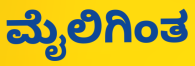
ಮೈಲಿಗಿಂತ